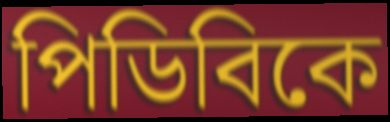
পিডিবিকে